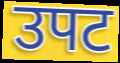
उपट